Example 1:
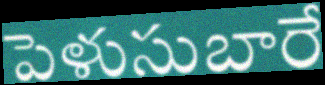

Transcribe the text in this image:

పెళుసుబారే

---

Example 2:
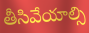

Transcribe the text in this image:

తీసివేయాల్సి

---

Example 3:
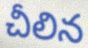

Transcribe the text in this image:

చీలిన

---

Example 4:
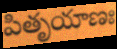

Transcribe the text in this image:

పితృయాణః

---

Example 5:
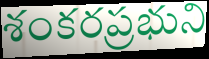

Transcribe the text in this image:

శంకరప్రభుని